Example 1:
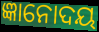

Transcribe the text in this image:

ଜ୍ଞାନୋଦୟ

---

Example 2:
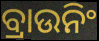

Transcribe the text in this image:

ବ୍ରାଉନିଂ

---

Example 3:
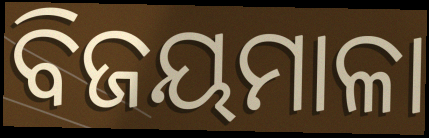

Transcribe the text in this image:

ବିଜୟମାଳା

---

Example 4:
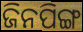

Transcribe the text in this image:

ଜିନପିଙ୍ଗ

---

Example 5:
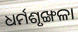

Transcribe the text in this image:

ଧର୍ମଶୃଙ୍ଖଳା